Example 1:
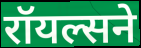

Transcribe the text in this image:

रॉयल्सने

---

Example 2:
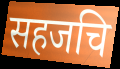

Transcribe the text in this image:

सहजचि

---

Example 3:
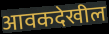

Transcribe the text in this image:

आवकदेखील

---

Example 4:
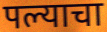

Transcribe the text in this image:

पल्याचा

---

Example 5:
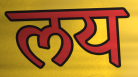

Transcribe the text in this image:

लय